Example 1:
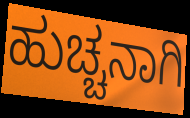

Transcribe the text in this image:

ಹುಚ್ಚನಾಗಿ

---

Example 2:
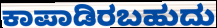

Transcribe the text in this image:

ಕಾಪಾಡಿರಬಹುದು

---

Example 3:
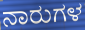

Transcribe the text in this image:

ನಾರುಗಳ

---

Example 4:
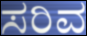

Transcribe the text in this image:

ಸರಿವ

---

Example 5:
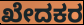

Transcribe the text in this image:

ಖೇದಕರ